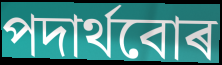
পদাৰ্থবোৰ